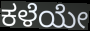
ಕಳೆಯೇ